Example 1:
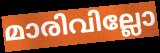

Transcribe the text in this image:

മാരിവില്ലോ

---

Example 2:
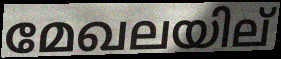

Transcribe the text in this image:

മേഖലയില്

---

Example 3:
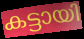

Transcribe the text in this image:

കട്ടായി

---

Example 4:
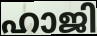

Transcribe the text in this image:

ഹാജി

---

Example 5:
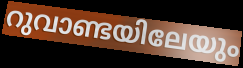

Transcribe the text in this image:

റുവാണ്ടയിലേയും